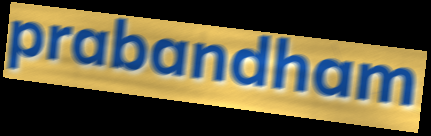
prabandham